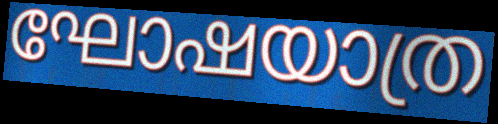
ഘോഷയാത്ര